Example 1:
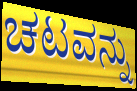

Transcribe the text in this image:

ಚಟವನ್ನು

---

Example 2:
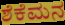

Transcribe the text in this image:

ಶೆಕೆಮನ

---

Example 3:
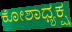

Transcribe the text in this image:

ಕೋಶಾಧ್ಯಕ್ಷ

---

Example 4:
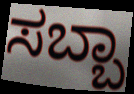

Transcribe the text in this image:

ಸಬ್ಬಾ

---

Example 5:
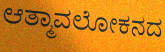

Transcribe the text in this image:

ಆತ್ಮಾವಲೋಕನದ